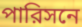
পারিসনে